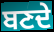
ਬਣਦੇ